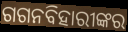
ଗଗନବିହାରୀଙ୍କର